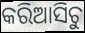
କରିଆସିଚୁ